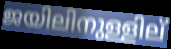
ജയിലിനുള്ളില്